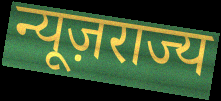
न्यूज़राज्य